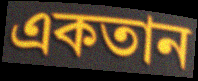
একতান